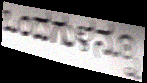
ಒಂದಗುಳನ್ನೂ